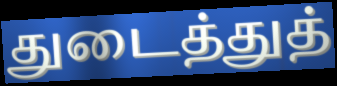
துடைத்துத்